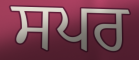
ਸਪਰ